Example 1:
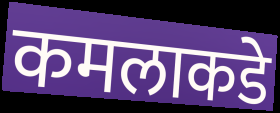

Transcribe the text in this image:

कमलाकडे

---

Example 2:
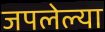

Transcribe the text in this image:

जपलेल्या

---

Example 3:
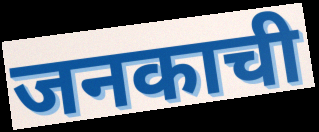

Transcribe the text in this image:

जनकाची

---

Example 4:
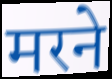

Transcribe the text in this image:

मरने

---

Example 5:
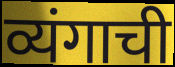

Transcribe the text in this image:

व्यंगाची